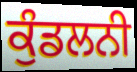
ਕੁੰਡਲਨੀ